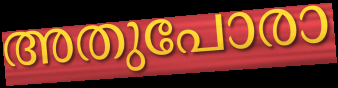
അതുപോരാ